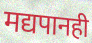
मद्यपानही